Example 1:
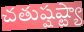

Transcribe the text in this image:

చతుష్షష్ట్యా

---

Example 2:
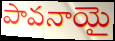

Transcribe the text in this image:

పావనాయై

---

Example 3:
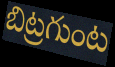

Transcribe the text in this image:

బిట్రగుంట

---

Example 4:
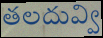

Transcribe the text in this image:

తలదువ్వి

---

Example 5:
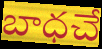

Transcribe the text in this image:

బాధచే